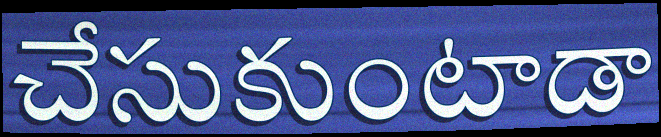
చేసుకుంటాడా